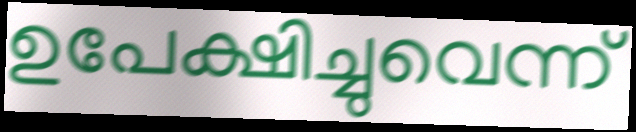
ഉപേക്ഷിച്ചുവെന്ന്